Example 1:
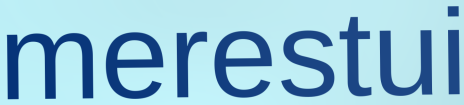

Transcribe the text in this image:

merestui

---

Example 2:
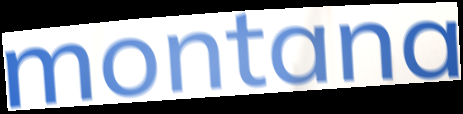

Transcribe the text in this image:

montana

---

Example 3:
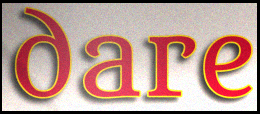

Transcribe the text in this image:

dare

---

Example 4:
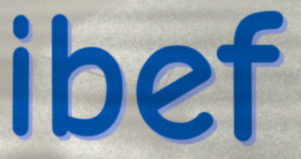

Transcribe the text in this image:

ibef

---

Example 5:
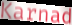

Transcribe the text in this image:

Karnad